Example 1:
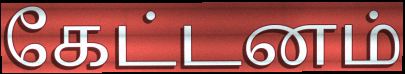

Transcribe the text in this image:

கேட்டனம்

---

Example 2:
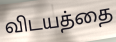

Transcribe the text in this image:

விடயத்தை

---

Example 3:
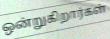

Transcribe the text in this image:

ஒன்றுகிறார்கள்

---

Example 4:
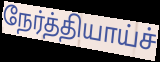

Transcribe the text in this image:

நேர்த்தியாய்ச்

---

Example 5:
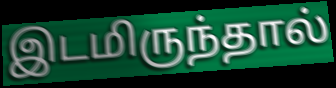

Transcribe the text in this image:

இடமிருந்தால்